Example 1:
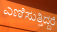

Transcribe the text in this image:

ಎಣಿಸುತ್ತಿದ್ದರೆ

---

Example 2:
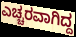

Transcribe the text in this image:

ಎಚ್ಚರವಾಗಿದ್ದ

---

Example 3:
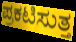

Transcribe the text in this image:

ಪ್ರಕಟಿಸುತ್ತ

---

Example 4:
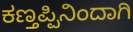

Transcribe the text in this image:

ಕಣ್ತಪ್ಪಿನಿಂದಾಗಿ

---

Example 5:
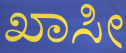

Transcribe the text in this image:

ಖಾಸೀ